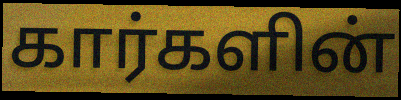
கார்களின்